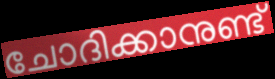
ചോദിക്കാനുണ്ട്